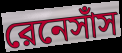
রেনেসাঁস